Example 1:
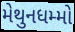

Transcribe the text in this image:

મેથુનધમ્મો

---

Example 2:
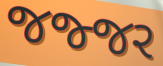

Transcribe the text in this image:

જજ્જર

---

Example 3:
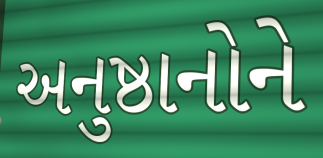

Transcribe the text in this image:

અનુષ્ઠાનોને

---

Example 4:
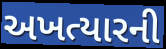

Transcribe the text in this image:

અખત્યારની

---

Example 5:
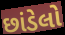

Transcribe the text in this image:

છાંડેલો